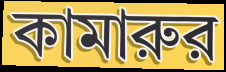
কামারুর